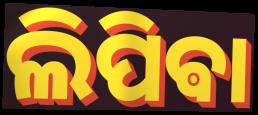
ଲିପିଵା